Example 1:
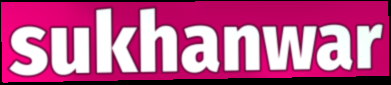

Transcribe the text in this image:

sukhanwar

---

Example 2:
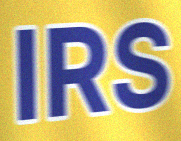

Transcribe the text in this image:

IRS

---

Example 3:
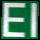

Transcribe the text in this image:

El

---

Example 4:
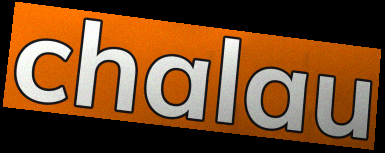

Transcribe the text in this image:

chalau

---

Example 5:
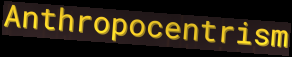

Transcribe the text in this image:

Anthropocentrism